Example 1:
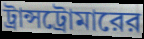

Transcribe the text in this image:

ট্রান্সট্রোমারের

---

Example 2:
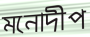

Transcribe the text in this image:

মনোদীপ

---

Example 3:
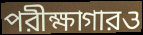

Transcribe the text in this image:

পরীক্ষাগারও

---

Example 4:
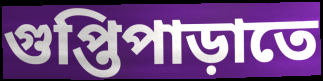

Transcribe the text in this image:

গুপ্তিপাড়াতে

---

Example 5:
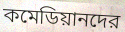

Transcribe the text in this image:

কমেডিয়ানদের